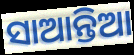
ସାଆନ୍ତିଆ